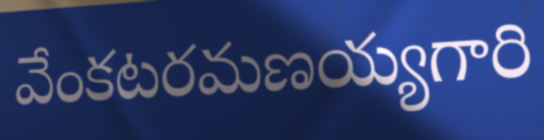
వేంకటరమణయ్యగారి